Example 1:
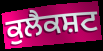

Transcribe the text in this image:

ਕੁਲੈਕਸ਼ਟ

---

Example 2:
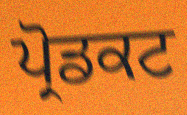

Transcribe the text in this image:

ਪ੍ਰੋਡਕਟ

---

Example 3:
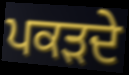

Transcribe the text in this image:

ਪਕੜਦੇ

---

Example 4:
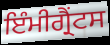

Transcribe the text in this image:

ਇੰਮੀਗ੍ਰੈਂਟਸ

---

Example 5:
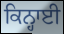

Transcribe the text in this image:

ਕਿਨ੍ਹਾਈ